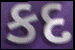
કદ